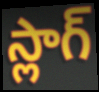
స్లాగ్